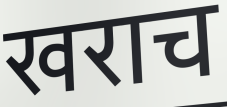
खराच